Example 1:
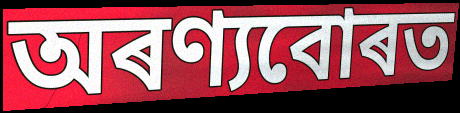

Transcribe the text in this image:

অৰণ্যবোৰত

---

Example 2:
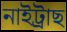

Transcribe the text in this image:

নাইট্ৰাছ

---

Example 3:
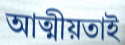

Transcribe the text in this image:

আত্মীয়তাই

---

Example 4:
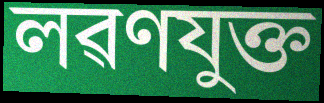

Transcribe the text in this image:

লৱণযুক্ত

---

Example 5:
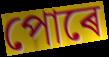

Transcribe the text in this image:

পোৰে